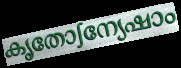
കൃതോഽന്യേഷാം